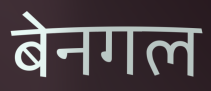
बेनगल